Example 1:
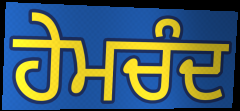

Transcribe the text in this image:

ਹੇਮਚੰਦ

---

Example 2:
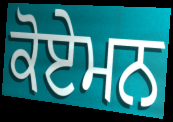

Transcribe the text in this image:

ਕੋਏਮਨ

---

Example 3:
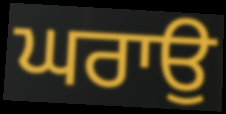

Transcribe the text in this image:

ਘਰਾਉ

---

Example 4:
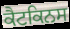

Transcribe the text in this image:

ਕੈਟਕਿਨਸ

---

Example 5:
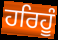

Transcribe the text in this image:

ਹਰਿਹੂੰ